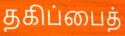
தகிப்பைத்